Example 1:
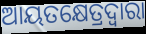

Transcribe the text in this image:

ଆୟତକ୍ଷେତ୍ରଦ୍ଵାରା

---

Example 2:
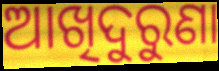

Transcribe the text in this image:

ଆଖିଦୁରୁଣା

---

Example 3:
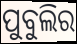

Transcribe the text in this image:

ପୁବୁଲିର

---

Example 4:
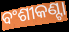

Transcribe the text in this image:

ବଂଶୀକଣ୍ଟା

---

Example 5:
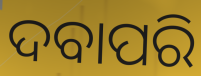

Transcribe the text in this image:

ଦବାପରି